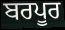
ਬਰਪੂਰ